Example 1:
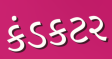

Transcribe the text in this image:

કંડકટર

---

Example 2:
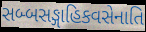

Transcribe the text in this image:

સબ્બસઙ્ગાહિકવસેનાતિ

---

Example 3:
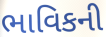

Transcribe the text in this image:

ભાવિકની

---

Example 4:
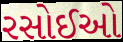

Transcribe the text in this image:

રસોઈઓ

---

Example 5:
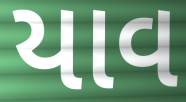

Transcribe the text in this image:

યાવ